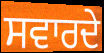
ਸਵਾਰਦੇ